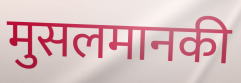
मुसलमानकी